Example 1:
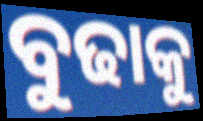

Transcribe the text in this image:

ବୁଢାକୁ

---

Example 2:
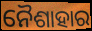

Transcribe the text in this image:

ନୈଶାହାର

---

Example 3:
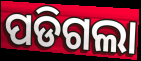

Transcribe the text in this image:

ପଡିଗଲା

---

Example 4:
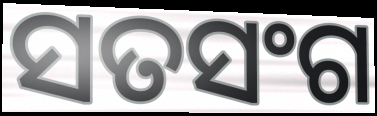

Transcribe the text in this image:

ସତସଂଗ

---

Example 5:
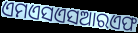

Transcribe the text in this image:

ଏମଏସଏସଆରଏଫ